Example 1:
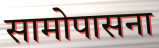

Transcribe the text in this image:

सामोपासना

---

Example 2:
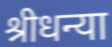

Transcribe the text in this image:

श्रीधन्या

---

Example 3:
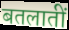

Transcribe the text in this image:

बतलातीं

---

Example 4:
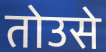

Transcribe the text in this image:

तोउसे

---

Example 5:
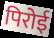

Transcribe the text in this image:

पिरोई